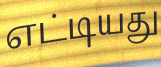
எட்டியது